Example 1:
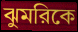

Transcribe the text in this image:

ঝুমরিকে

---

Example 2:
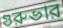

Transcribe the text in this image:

গুরুভার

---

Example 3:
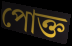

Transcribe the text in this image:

পোক্ত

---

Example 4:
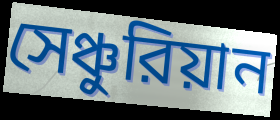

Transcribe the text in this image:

সেঞ্চুরিয়ান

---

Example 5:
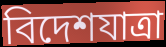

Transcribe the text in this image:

বিদেশযাত্রা